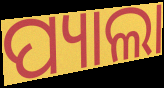
ପ୍ୟାଲା